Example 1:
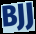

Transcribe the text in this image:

BJJ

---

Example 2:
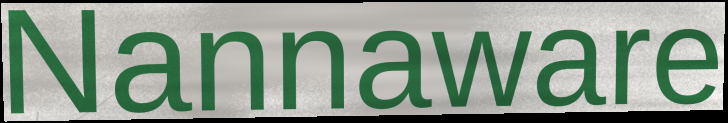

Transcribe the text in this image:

Nannaware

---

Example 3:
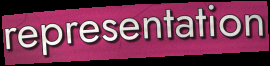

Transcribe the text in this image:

representation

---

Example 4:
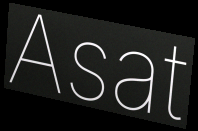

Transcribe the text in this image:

Asat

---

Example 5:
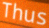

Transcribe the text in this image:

Thus